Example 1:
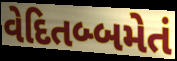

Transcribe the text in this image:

વેદિતબ્બમેતં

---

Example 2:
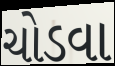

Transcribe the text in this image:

ચોડવા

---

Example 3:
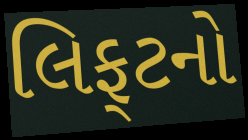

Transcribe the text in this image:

લિફ્‌ટનો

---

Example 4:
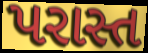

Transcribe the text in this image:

પરાસ્ત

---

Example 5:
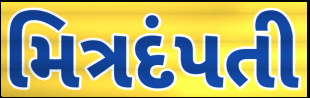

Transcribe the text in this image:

મિત્રદંપતી